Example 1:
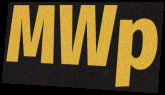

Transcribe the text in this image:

MWp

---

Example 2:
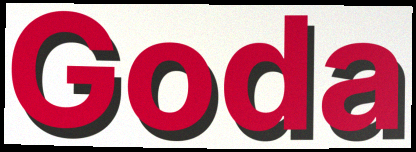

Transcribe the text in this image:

Goda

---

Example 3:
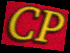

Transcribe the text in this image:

CP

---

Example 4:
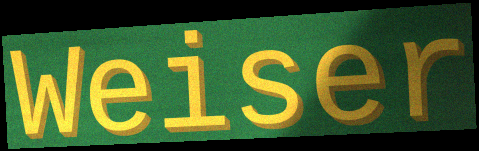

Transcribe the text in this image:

Weiser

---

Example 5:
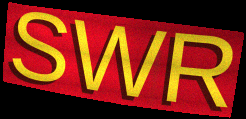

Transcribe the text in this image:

SWR